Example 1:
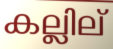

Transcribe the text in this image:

കല്ലില്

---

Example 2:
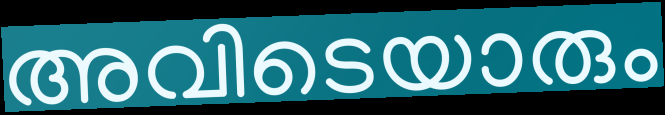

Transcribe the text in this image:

അവിടെയാരും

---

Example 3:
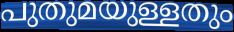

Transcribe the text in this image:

പുതുമയുള്ളതും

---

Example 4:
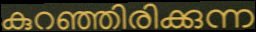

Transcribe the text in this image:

കുറഞ്ഞിരിക്കുന്ന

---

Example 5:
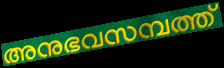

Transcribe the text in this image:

അനുഭവസമ്പത്ത്